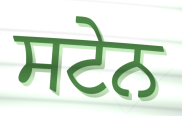
ਸਟੇਨ